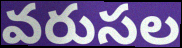
వరుసల